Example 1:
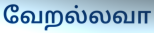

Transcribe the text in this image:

வேறல்லவா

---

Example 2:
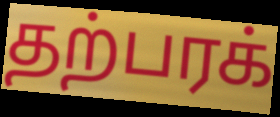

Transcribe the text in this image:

தற்பரக்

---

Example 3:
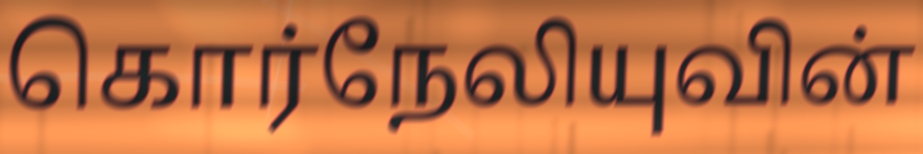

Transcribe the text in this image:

கொர்நேலியுவின்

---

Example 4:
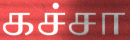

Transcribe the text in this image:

கச்சா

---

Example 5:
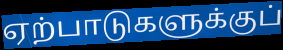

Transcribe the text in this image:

ஏற்பாடுகளுக்குப்